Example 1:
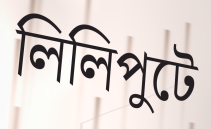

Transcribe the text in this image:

লিলিপুটে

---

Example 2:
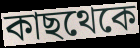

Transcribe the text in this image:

কাছথেকে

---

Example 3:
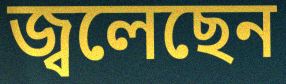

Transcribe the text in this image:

জ্বলেছেন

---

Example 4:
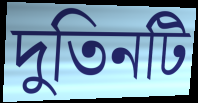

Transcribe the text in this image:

দুতিনটি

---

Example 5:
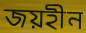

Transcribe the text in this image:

জয়হীন